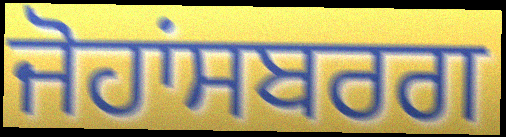
ਜੋਹਾਂਸਬਰਗ